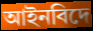
আইনবিদে